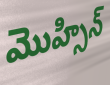
మొహ్సిన్